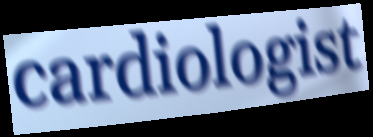
cardiologist